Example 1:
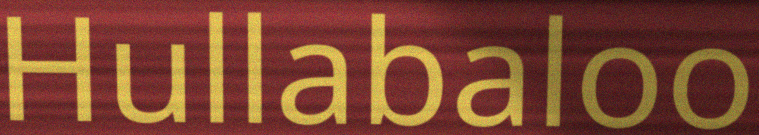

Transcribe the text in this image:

Hullabaloo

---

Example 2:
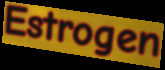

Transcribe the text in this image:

Estrogen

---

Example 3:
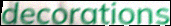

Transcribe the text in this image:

decorations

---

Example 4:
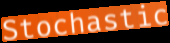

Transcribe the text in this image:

Stochastic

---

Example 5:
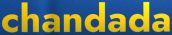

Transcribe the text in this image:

chandada